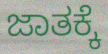
ಜಾತಕ್ಕೆ